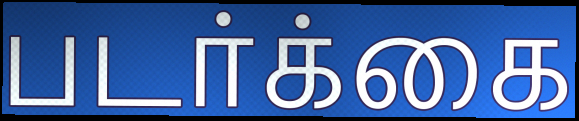
படர்க்கை